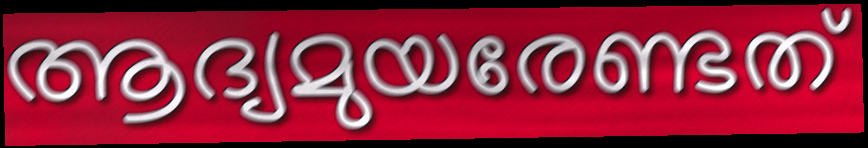
ആദ്യമുയരേണ്ടത്